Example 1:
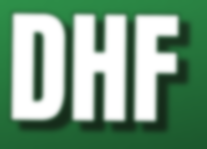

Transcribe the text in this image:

DHF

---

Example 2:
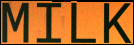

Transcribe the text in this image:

MILK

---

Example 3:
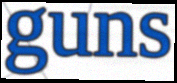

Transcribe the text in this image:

guns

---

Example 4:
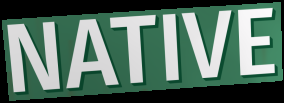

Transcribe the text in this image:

NATIVE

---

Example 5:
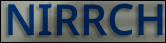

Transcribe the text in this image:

NIRRCH